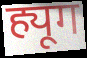
ह्यूग